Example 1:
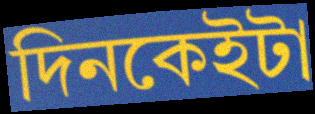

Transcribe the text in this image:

দিনকেইটা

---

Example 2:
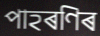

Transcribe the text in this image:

পাহৰণিৰ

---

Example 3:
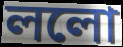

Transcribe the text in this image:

ললো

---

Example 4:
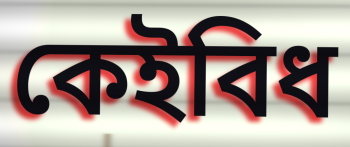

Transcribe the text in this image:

কেইবিধ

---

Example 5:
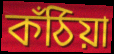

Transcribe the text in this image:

কঁঠিয়া